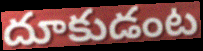
దూకుడంట